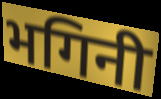
भगिनी